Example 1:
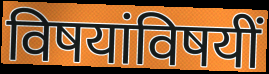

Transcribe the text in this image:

विषयांविषयीं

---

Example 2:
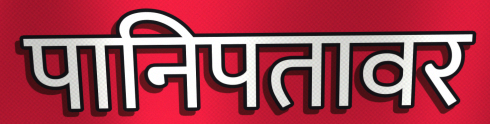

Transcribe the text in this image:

पानिपतावर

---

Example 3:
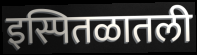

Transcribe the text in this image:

इस्पितळातली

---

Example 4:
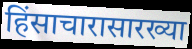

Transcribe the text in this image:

हिंसाचारासारख्या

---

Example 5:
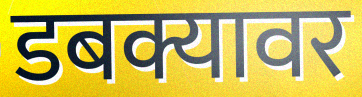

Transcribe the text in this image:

डबक्यावर